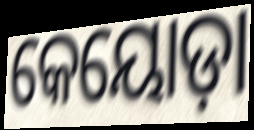
କେୟୋଡ଼ା